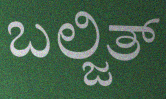
ಬಲ್ಜಿತ್